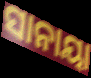
ସାନାୟା